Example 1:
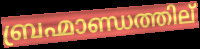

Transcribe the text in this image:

ബ്രഹ്മാണ്ഡത്തില്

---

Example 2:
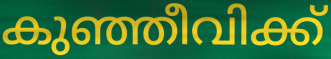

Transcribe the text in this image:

കുഞ്ഞീവിക്ക്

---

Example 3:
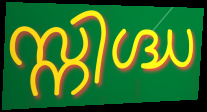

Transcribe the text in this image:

സ്നിഗ്ദ്ധ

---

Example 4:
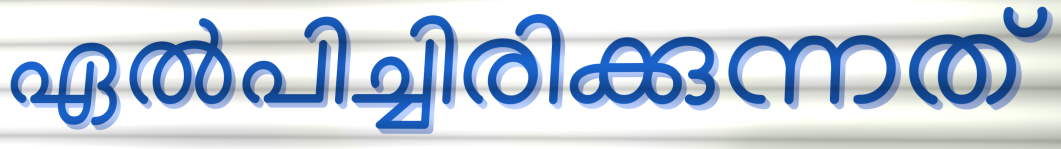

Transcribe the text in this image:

ഏൽപിച്ചിരിക്കുന്നത്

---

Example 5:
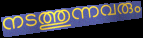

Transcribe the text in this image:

നടത്തുന്നവരും